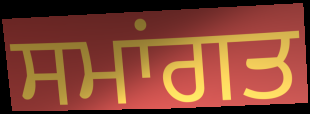
ਸਮਾਂਗਤ